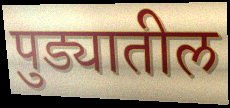
पुड्यातील